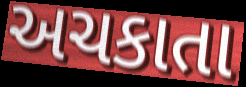
અચકાતા